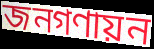
জনগণায়ন